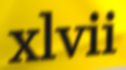
xlvii